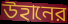
উহানের